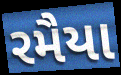
રમૈયા